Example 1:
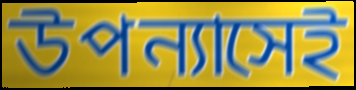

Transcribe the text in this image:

উপন্যাসেই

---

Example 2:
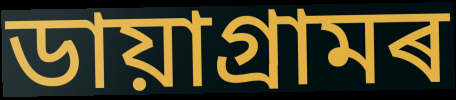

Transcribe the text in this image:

ডায়াগ্ৰামৰ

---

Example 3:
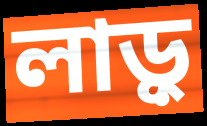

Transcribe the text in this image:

লাড়ু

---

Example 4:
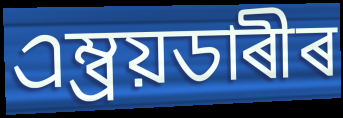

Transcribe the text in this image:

এম্ব্ৰয়ডাৰীৰ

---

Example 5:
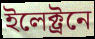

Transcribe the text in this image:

ইলেক্ট্ৰনে